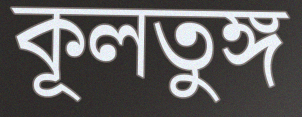
কূলতুঙ্গ